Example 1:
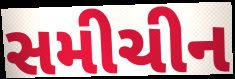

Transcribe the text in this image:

સમીચીન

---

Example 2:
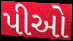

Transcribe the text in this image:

પીઓ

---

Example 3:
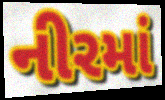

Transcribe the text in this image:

નીરમાં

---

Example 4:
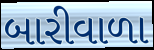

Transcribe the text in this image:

બારીવાળા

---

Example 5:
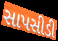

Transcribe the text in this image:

સાપસીડી